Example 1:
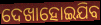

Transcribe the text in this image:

ଦେଖାହୋଇଯିବ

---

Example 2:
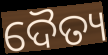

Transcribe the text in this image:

ଦୈତ୍ୟ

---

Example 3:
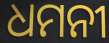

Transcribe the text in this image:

ଧମନୀ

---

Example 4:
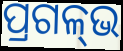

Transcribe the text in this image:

ପ୍ରଗଳ୍‌ଭ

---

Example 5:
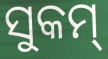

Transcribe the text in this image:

ସୁକମ୍